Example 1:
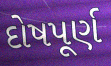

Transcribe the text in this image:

દોષપૂર્ણ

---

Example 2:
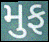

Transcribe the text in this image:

મુફ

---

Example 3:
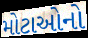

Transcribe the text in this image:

મોટાઓનો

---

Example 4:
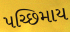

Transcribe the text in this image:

પચ્છિમાય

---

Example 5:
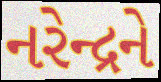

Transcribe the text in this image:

નરેન્દ્રને